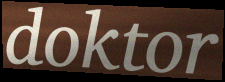
doktor